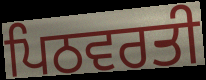
ਪਿਠਵਰਤੀ